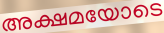
അക്ഷമയോടെ